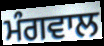
ਮੰਗਵਾਲ